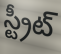
స్ట్రీట్